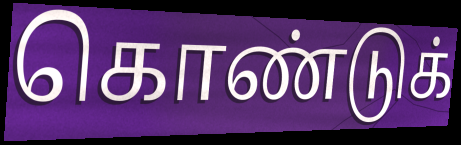
கொண்டுக்